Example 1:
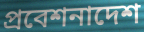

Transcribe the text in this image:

প্রবেশনাদেশ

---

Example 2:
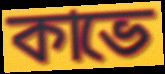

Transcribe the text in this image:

কাভে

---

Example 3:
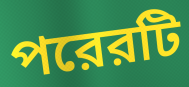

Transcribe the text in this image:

পরেরটি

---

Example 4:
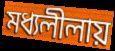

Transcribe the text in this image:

মধ্যলীলায়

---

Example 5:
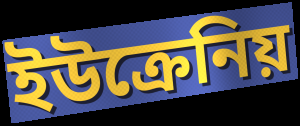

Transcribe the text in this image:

ইউক্রেনিয়